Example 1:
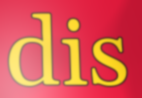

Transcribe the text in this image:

dis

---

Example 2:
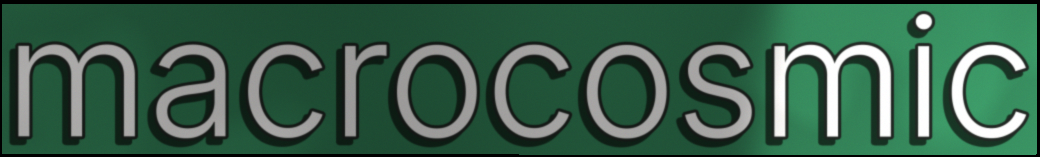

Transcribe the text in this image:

macrocosmic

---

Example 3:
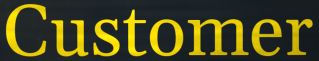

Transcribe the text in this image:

Customer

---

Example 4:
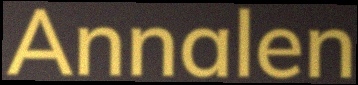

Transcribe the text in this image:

Annalen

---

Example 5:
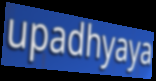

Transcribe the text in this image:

upadhyaya